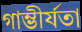
গাম্ভীর্যতা